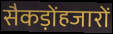
सैकड़ोंहजारों